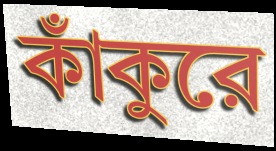
কাঁকুরে